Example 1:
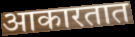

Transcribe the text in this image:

आकारतात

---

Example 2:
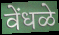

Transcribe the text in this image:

वेंधळे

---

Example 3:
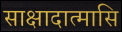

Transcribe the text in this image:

साक्षादात्मासि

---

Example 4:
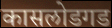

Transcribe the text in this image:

कासलोडगड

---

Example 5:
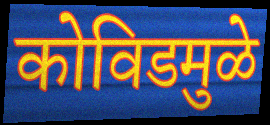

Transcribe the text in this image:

कोविडमुळे